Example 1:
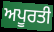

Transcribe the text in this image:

ਅਪੂਰਤੀ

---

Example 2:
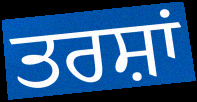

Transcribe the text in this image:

ਤਰਸ਼ਾਂ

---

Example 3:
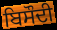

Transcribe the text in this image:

ਬਿਸੌਦੀ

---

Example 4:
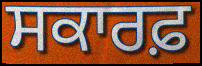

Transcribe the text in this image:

ਸਕਾਰਫ਼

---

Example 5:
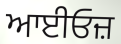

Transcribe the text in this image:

ਆਈਓਜ਼